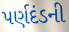
પર્ણદંડની